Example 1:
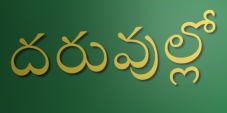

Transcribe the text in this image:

దరువుల్లో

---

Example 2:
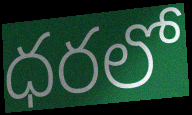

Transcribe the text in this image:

ధరలో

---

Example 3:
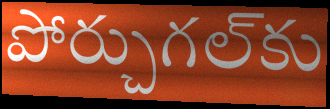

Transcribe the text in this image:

పోర్చుగల్‌కు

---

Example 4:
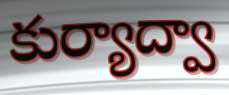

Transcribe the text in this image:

కుర్యాద్వా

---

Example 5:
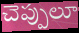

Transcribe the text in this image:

చెప్పులూ